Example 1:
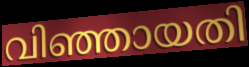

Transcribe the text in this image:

വിഞ്ഞായതി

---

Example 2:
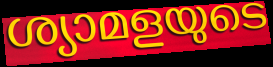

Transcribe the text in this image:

ശ്യാമളയുടെ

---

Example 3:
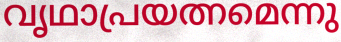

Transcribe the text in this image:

വൃഥാപ്രയത്നമെന്നു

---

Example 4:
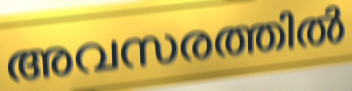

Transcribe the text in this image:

അവസരത്തിൽ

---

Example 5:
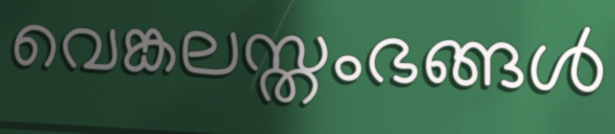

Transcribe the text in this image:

വെങ്കലസ്തംഭങ്ങൾ